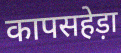
कापसहेड़ा